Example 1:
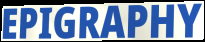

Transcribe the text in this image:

EPIGRAPHY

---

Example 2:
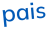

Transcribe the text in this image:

pais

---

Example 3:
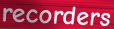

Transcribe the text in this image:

recorders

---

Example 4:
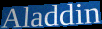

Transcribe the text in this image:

Aladdin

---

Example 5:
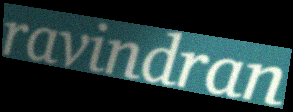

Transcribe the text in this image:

ravindran